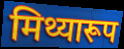
मिथ्यारूप